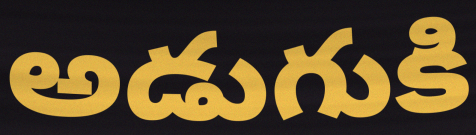
అడుగుకి